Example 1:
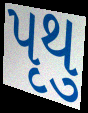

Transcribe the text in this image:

પૃથુ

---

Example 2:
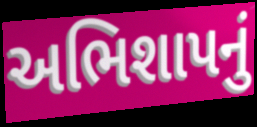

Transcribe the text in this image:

અભિશાપનું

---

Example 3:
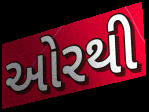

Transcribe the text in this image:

ઓરથી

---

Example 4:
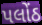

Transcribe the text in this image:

પલોંઠ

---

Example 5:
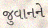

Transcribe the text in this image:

જુવાનને